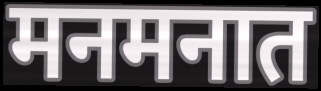
मनमनात